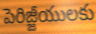
పెరిజ్జీయులకు